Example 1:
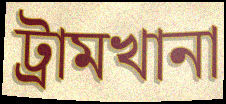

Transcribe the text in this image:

ট্রামখানা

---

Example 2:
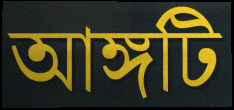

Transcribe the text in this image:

আঙ্গটি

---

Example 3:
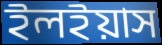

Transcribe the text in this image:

ইলইয়াস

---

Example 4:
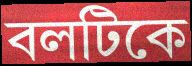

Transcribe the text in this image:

বলটিকে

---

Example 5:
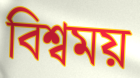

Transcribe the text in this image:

বিশ্বময়